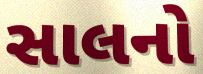
સાલનો